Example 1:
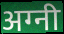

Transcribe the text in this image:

अग्नी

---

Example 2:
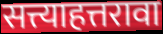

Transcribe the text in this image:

सत्त्याहत्तरावा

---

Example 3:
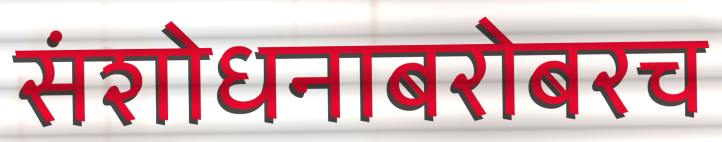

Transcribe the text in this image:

संशोधनाबरोबरच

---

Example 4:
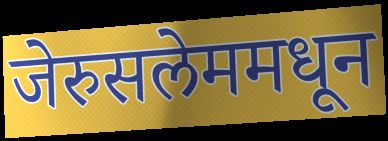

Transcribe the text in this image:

जेरुसलेममधून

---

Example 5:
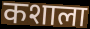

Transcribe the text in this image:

कशाला